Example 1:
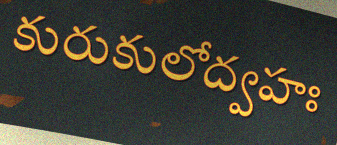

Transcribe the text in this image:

కురుకులోద్వహః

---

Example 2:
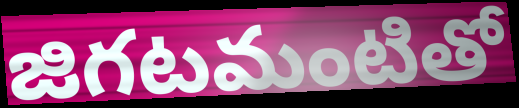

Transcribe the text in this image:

జిగటమంటితో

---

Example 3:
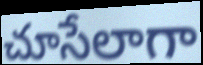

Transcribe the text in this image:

చూసేలాగా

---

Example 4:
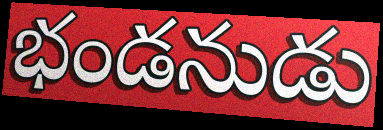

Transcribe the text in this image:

భండనుడు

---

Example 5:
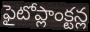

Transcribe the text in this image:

ఫైటోప్లాంక్టన్ల